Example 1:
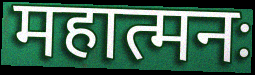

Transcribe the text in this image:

महात्मनः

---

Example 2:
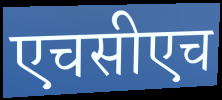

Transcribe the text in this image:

एचसीएच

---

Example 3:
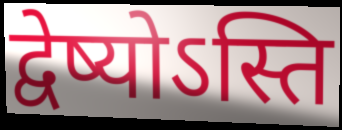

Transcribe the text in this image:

द्वेष्योऽस्ति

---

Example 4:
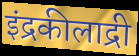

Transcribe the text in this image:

इंद्रकीलाद्री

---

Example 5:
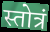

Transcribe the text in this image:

स्तोत्रं